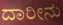
ದಾರೀನು